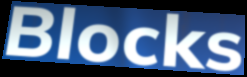
Blocks